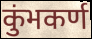
कुंभकर्ण